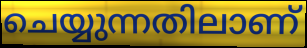
ചെയ്യുന്നതിലാണ്